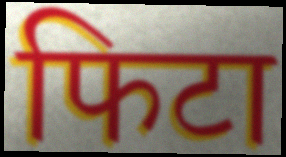
फिटा